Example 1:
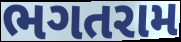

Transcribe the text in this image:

ભગતરામ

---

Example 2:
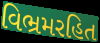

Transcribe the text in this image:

વિભ્રમરહિત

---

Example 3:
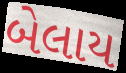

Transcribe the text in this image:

બેલાય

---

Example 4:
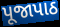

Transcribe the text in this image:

પૂજાપાઠ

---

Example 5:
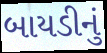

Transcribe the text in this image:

બાયડીનું